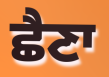
ਛੈਣਾ